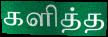
களித்த